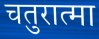
चतुरात्मा